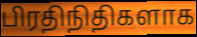
பிரதிநிதிகளாக